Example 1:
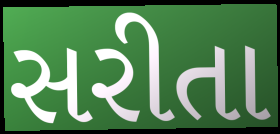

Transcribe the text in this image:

સરીતા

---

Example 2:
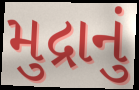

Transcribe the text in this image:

મુદ્રાનું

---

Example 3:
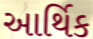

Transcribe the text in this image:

આર્થિક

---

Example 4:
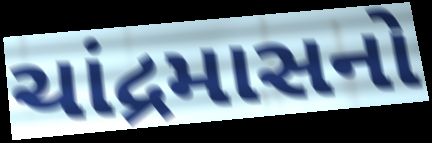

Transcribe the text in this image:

ચાંદ્રમાસનો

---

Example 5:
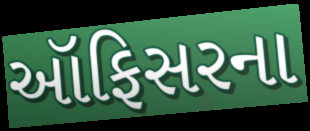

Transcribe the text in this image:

ઑફિસરના